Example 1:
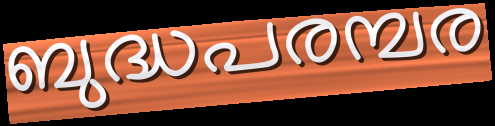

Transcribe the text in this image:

ബുദ്ധപരമ്പര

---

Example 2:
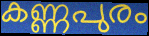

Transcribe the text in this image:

കണ്ണപുരം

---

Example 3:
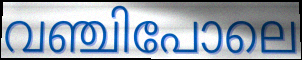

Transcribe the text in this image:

വഞ്ചിപോലെ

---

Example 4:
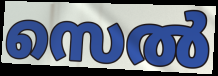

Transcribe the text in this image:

സെൽ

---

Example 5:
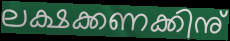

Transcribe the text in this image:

ലക്ഷക്കണക്കിനു്